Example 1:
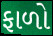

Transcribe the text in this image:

ફાળો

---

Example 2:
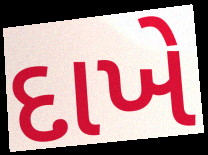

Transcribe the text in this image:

દાખે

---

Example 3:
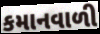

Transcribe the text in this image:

કમાનવાળી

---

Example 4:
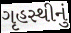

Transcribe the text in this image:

ગૃહસ્થીનું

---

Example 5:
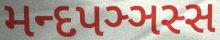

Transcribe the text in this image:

મન્દપઞ્ઞસ્સ